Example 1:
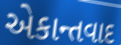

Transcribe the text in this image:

એકાન્તવાદ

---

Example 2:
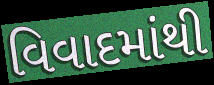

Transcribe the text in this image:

વિવાદમાંથી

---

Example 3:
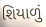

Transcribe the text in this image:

શિયાળું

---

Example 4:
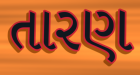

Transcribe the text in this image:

તારણ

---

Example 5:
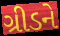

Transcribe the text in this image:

ગ્રીડને